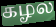
கழல